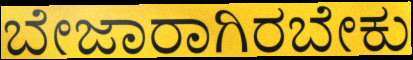
ಬೇಜಾರಾಗಿರಬೇಕು